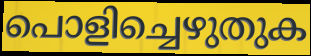
പൊളിച്ചെഴുതുക